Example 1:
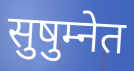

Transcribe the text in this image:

सुषुम्नेत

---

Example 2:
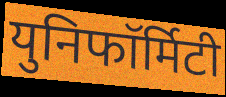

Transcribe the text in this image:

युनिफॉर्मिटी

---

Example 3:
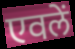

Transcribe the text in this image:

एवलें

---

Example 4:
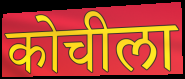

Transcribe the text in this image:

कोचीला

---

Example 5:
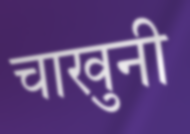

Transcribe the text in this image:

चाखुनी